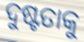
ଦୁଷ୍ଟତାକୁ